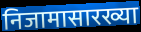
निजामासारख्या